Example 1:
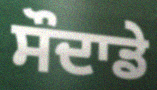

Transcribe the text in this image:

ਸੌਦਾਡੇ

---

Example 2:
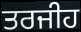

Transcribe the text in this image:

ਤਰਜੀਹ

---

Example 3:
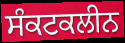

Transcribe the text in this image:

ਸੰਕਟਕਲੀਨ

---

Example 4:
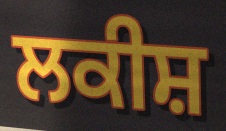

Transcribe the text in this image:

ਲਕੀਸ਼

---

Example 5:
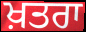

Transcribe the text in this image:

ਖ਼ਤਰਾ